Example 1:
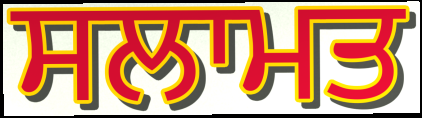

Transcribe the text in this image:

ਸਲਾਮਤ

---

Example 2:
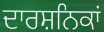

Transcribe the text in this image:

ਦਾਰਸ਼ਨਿਕਾਂ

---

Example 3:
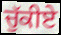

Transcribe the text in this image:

ਚੁੱਕੀਏ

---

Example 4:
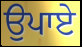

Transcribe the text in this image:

ਉਪਾਏ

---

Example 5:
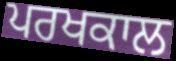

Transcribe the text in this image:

ਪਰਖਕਾਲ